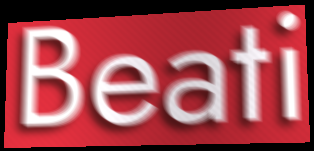
Beati